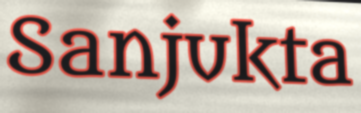
Sanjukta